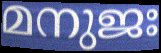
മനുജഃ